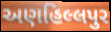
અણહિલ્લપુર